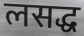
लसद्ध